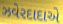
ઝવેરદાદાએ